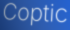
Coptic